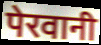
पेरवानी